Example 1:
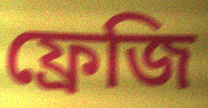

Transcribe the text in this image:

ফ্রেজি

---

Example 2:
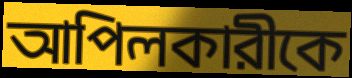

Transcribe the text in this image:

আপিলকারীকে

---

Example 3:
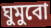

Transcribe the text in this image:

ঘুমুবো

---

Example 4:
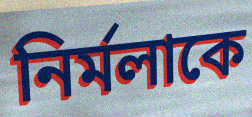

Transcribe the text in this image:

নির্মলাকে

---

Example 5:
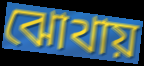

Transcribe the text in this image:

ঝোথায়